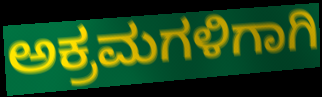
ಅಕ್ರಮಗಳಿಗಾಗಿ